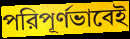
পরিপূর্ণভাবেই